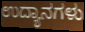
ಉದ್ಯಾನಗಳು